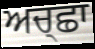
ਅਚ੍ਛਾ